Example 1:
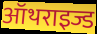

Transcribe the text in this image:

ऑथराइज्ड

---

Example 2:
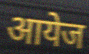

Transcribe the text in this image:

आयेज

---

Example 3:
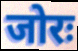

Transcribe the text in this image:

जोरः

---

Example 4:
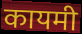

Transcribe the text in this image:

कायमी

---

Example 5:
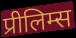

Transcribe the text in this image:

प्रीलिम्स